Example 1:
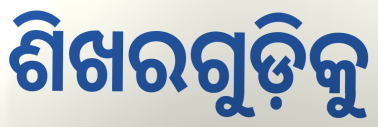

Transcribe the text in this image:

ଶିଖରଗୁଡ଼ିକୁ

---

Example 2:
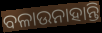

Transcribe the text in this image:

ବଳାଉନାହାନ୍ତି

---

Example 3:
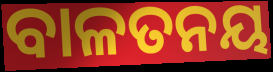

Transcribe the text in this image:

ବାଳତନୟ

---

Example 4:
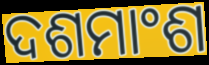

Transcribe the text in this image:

ଦଶମାଂଶ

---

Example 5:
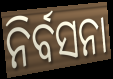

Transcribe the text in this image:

ନିର୍ବସନା